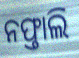
ନଫ୍ତାଲି